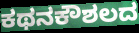
ಕಥನಕೌಶಲದ